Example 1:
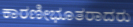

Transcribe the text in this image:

ಕಾರಣೀಭೂತರಾದರು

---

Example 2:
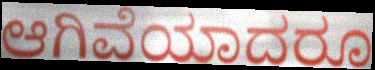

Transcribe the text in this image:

ಆಗಿವೆಯಾದರೂ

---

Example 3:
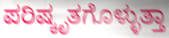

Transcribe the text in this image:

ಪರಿಷ್ಕೃತಗೊಳ್ಳುತ್ತಾ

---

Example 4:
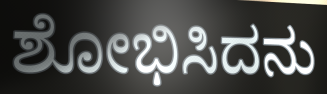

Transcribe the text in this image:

ಶೋಭಿಸಿದನು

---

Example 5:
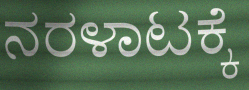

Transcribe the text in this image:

ನರಳಾಟಕ್ಕೆ